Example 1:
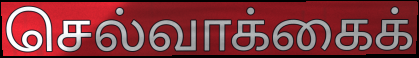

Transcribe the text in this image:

செல்வாக்கைக்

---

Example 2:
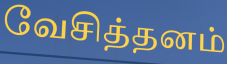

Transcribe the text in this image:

வேசித்தனம்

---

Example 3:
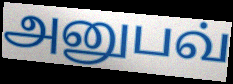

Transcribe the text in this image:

அனுபவ்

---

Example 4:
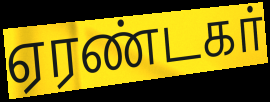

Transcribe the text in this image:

ஏரண்டகர்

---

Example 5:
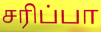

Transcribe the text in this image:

சரிப்பா